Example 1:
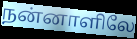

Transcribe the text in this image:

நன்னாளிலே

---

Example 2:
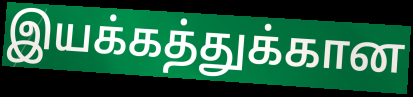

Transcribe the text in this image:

இயக்கத்துக்கான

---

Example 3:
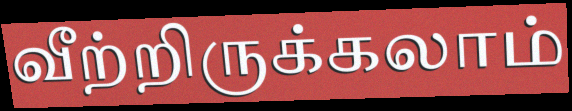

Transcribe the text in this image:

வீற்றிருக்கலாம்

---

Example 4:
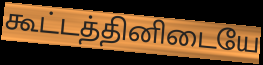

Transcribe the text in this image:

கூட்டத்தினிடையே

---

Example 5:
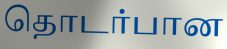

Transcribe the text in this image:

தொடர்பான